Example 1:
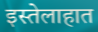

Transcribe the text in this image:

इस्तेलाहात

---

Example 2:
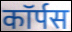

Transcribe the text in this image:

कॉर्पस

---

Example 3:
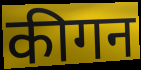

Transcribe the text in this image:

कीगन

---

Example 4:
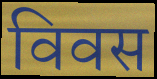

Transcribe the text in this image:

विवस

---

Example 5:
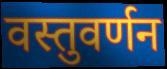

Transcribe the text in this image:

वस्तुवर्णन